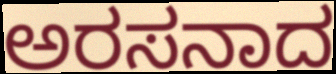
ಅರಸನಾದ